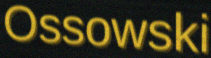
Ossowski